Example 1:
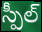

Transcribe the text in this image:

స్పీల్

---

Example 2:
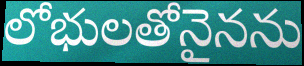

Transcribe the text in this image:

లోభులతోనైనను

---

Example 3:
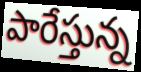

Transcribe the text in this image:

పారేస్తున్న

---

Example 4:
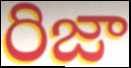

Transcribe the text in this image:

రిజా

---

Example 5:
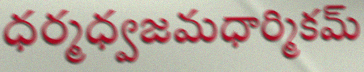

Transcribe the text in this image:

ధర్మధ్వజమధార్మికమ్